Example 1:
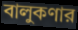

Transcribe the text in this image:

বালুকণার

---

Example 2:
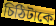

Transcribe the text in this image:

চিঠিটাকে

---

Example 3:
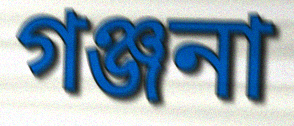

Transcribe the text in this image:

গঞ্জনা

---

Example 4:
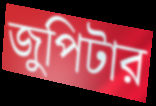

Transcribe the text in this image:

জুপিটার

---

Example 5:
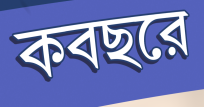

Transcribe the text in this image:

কবছরে